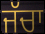
ਜੱਚਾ